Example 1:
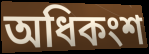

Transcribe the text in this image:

অধিকংশ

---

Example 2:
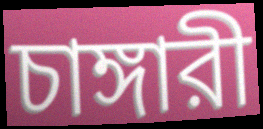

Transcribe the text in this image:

চাঙ্গারী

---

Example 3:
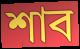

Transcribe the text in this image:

শাব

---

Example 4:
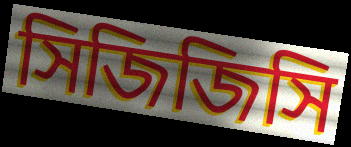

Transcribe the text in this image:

সিজিজিসি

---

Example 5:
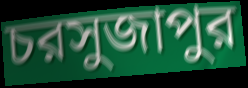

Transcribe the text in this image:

চরসুজাপুর